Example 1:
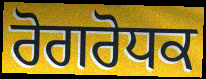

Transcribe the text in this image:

ਰੋਗਰੋਧਕ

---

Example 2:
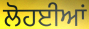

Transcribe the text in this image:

ਲੋਹਈਆਂ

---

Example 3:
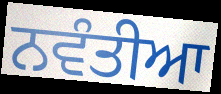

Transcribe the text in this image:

ਨਵੰਤੀਆ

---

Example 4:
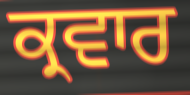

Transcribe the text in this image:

ਕ੍ਰਵਾਰ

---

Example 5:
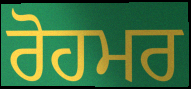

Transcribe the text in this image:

ਰੋਹਮਰ